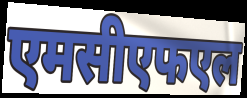
एमसीएफएल